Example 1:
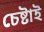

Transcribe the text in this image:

চেষ্টাই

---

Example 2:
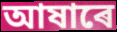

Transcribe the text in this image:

আষাৰে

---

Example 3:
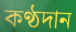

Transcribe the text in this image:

কণ্ঠদান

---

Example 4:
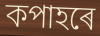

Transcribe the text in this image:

কপাহৰে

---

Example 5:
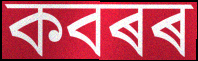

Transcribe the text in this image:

কবৰৰ